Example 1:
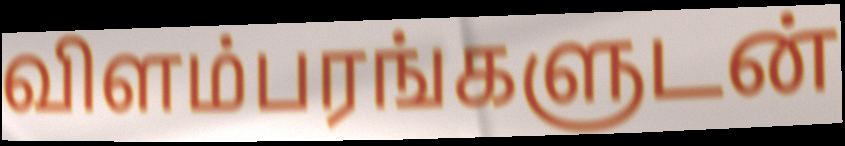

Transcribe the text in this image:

விளம்பரங்களுடன்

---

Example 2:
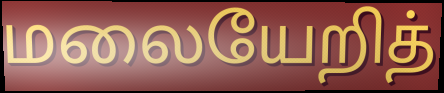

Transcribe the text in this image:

மலையேறித்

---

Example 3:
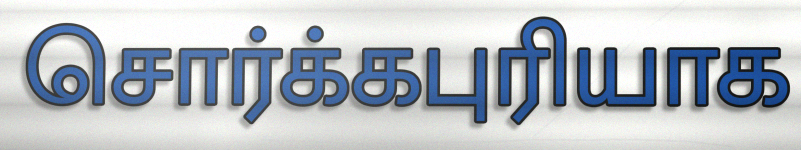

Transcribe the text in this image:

சொர்க்கபுரியாக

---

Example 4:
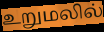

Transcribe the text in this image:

உறுமலில்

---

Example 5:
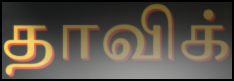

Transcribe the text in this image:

தாவிக்